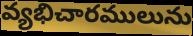
వ్యభిచారములును